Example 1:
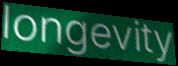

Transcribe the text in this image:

longevity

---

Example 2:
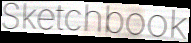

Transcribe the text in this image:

Sketchbook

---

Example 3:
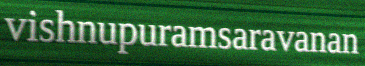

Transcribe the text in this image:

vishnupuramsaravanan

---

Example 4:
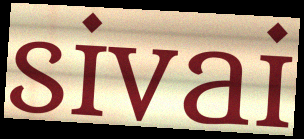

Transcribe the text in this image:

sivai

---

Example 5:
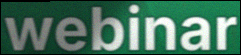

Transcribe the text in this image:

webinar